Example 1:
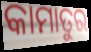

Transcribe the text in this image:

କାମାତୁର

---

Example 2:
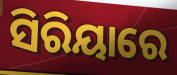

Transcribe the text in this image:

ସିରିୟାରେ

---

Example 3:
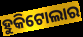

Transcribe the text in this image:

ହୁକିଟୋଲାର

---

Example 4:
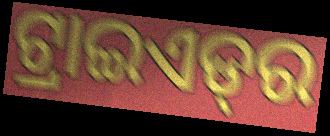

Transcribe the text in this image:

ଟ୍ରାଇଏଡ୍‌ର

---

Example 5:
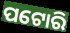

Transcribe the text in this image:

ପଟୋରି